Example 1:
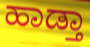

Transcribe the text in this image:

ಹಾಡ್ತಾ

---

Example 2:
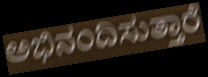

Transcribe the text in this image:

ಅಭಿನಂದಿಸುತ್ತಾರೆ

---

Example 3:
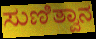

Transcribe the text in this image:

ಸುಣಿತ್ವಾನ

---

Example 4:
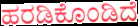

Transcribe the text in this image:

ಹರಡಿಕೊಂಡಿದೆ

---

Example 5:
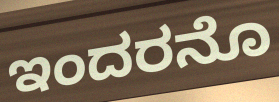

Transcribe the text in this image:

ಇಂದರನೊ